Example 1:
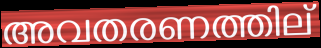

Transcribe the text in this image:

അവതരണത്തില്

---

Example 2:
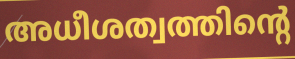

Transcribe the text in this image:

അധീശത്വത്തിന്റെ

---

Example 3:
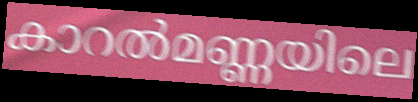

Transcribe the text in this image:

കാറൽമണ്ണയിലെ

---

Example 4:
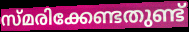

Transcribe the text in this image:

സ്മരിക്കേണ്ടതുണ്ട്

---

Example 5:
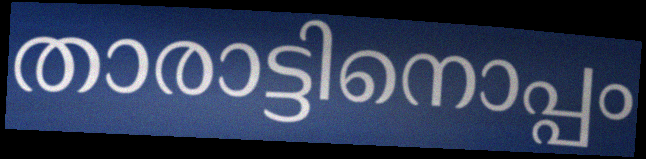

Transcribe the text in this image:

താരാട്ടിനൊപ്പം